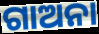
ଗାଅନା